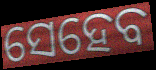
ସେହେବ